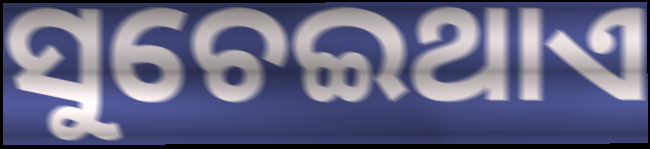
ସୁଚେଇଥାଏ